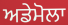
ਅਡੇਮੋਲਾ